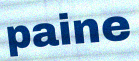
paine